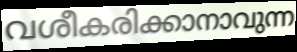
വശീകരിക്കാനാവുന്ന